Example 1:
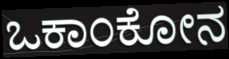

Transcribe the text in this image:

ಒಕಾಂಕೋನ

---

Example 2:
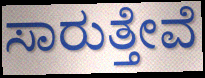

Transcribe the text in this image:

ಸಾರುತ್ತೇವೆ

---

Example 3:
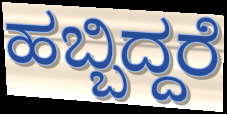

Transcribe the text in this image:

ಹಬ್ಬಿದ್ದರೆ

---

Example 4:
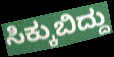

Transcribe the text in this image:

ಸಿಕ್ಕುಬಿದ್ದು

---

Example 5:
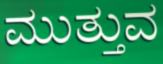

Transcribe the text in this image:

ಮುತ್ತುವ